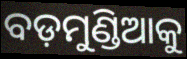
ବଡ଼ମୁଣ୍ଡିଆକୁ